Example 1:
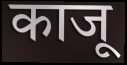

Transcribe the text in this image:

काजू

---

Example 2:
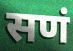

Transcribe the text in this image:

सणं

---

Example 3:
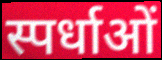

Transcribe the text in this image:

स्पर्धाओं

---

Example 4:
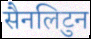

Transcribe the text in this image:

सैनलिटुन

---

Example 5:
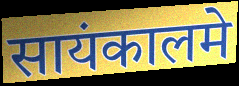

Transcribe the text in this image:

सायंकालमे